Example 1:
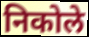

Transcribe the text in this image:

निकोले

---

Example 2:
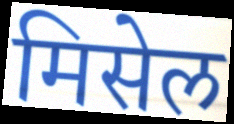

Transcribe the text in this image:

मिसेल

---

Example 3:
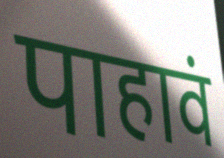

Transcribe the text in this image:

पाहावं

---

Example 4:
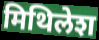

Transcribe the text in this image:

मिथिलेश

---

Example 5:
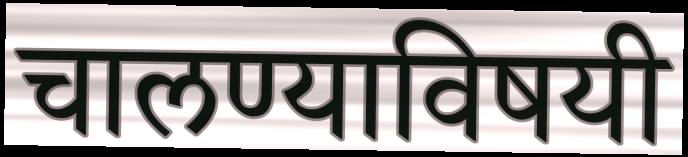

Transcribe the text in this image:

चालण्याविषयी